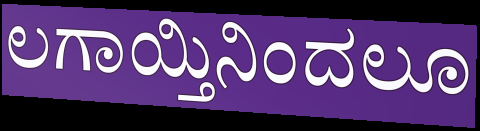
ಲಗಾಯ್ತಿನಿಂದಲೂ